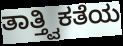
ತಾತ್ತ್ವಿಕತೆಯ